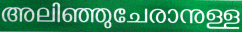
അലിഞ്ഞുചേരാനുള്ള